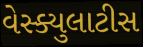
વેસ્ક્યુલાટીસ